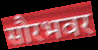
सौरभवर